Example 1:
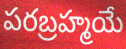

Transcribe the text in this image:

పరబ్రహ్మయే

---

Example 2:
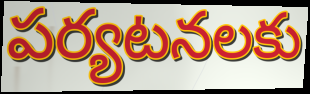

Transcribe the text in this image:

పర్యటనలకు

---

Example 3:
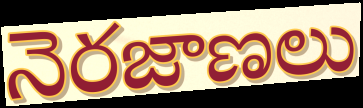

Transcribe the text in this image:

నెరజాణలు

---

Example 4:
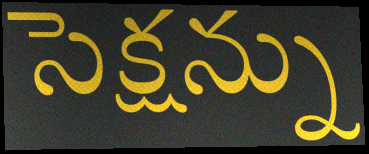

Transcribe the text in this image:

సెక్షన్ను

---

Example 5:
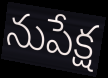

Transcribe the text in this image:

నుపేక్ష